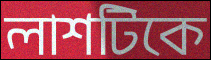
লাশটিকে